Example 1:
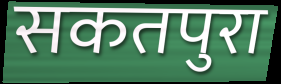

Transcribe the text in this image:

सकतपुरा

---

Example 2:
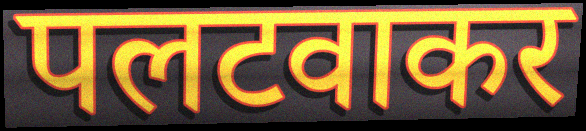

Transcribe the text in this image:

पलटवाकर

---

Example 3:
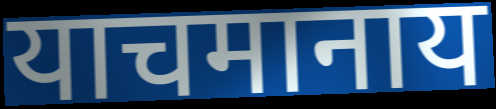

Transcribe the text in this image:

याचमानाय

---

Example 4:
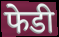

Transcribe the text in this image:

फेडी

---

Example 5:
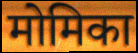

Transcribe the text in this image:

मोमिका